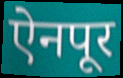
ऐनपूर